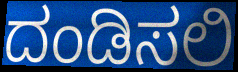
ದಂಡಿಸಲಿ